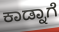
ಕಾಡ್ನಾಗೆ